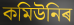
কমিউনিৰ